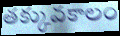
తక్కువకాలం